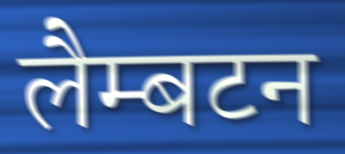
लैम्बटन